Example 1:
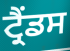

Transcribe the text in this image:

ਟ੍ਰੈਂਡਸ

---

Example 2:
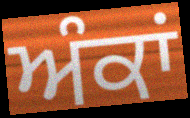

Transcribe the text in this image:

ਅੰਕਾਂ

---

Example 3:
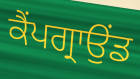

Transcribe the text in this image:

ਕੈਂਪਗ੍ਰਾਉਂਡ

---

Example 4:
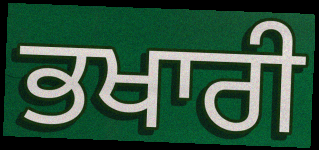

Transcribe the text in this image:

ਭਖਾਰੀ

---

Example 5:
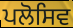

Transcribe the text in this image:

ਪਲੋਸਿਵ